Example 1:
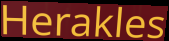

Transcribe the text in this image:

Herakles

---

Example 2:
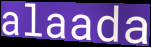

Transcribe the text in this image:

alaada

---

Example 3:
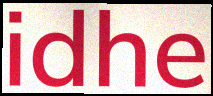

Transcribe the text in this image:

idhe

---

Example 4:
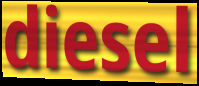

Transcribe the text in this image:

diesel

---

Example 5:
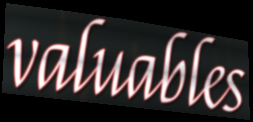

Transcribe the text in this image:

valuables